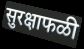
सुरक्षाफळी